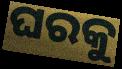
ଘରକୁ